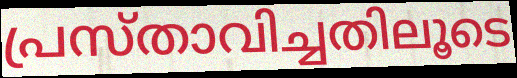
പ്രസ്താവിച്ചതിലൂടെ